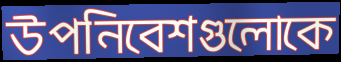
উপনিবেশগুলোকে